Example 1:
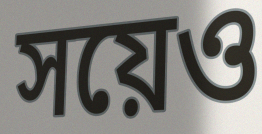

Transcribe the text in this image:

সয়েও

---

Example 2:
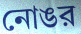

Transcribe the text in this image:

নোঙর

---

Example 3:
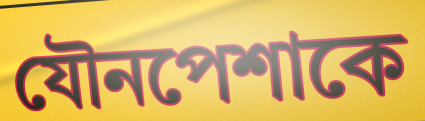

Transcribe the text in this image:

যৌনপেশাকে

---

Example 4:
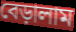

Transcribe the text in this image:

বেড়ালাম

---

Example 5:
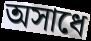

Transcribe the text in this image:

অসাধে